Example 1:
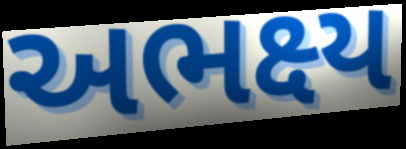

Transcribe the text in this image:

અભક્ષ્ય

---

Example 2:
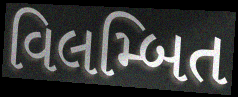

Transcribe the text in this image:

વિલમ્બિત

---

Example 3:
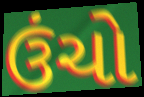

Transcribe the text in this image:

ઉંચો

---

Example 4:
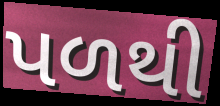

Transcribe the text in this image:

પળથી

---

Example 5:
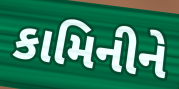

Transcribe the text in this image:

કામિનીને